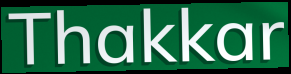
Thakkar